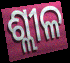
ଶ୍ଲୀଳ